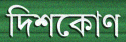
দিশকোণ